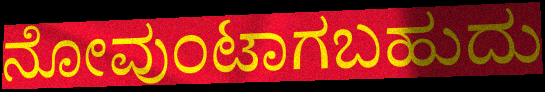
ನೋವುಂಟಾಗಬಹುದು